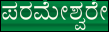
ಪರಮೇಶ್ವರೇ